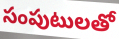
సంపుటులతో